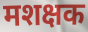
मशक्षक